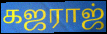
கஜராஜ்